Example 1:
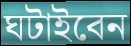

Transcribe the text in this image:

ঘটাইবেন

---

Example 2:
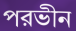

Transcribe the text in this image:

পরভীন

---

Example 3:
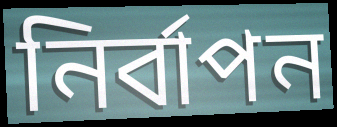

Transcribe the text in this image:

নির্বাপন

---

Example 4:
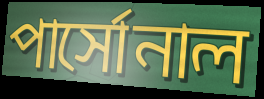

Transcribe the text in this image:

পার্সোনাল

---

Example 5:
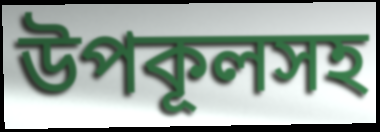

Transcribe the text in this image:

উপকূলসহ